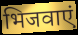
भिजवाएं